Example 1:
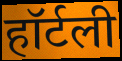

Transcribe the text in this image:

हॉर्टली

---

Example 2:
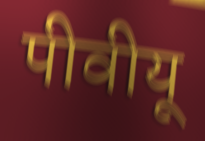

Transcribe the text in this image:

पीवीयू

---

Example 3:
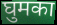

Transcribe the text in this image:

घुमका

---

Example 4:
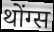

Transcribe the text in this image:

थोंग्स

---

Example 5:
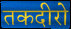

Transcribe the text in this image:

तकदीरो